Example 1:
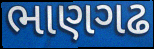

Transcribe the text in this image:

ભાણગઢ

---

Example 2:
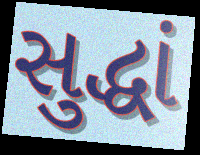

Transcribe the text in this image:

સુદ્ધાં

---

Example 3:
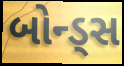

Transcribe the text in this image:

બોન્ડ્સ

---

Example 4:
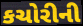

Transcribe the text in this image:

કચોરીની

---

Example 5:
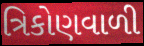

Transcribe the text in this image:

ત્રિકોણવાળી